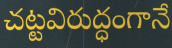
చట్టవిరుద్ధంగానే